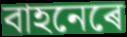
বাহনেৰে